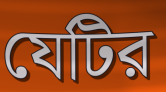
যেটির